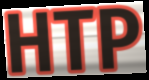
HTP